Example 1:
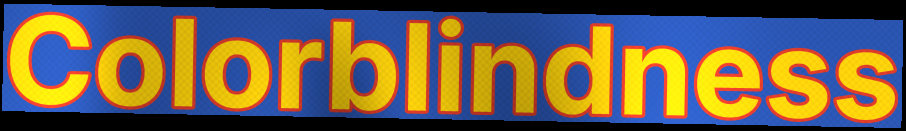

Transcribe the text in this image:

Colorblindness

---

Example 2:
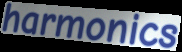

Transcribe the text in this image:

harmonics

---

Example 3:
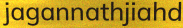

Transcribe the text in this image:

jagannathjiahd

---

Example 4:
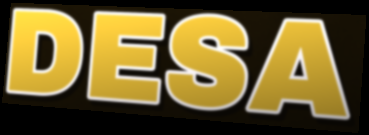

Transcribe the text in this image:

DESA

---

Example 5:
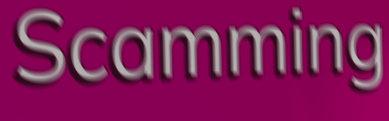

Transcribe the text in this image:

Scamming